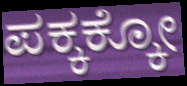
ಪಕ್ಕಕ್ಕೋ